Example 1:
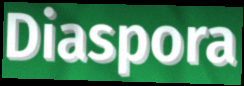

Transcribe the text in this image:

Diaspora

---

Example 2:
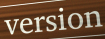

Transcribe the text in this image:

version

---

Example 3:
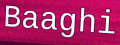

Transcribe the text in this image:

Baaghi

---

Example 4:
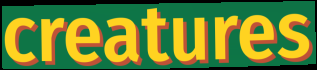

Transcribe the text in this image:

creatures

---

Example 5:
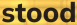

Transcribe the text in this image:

stood